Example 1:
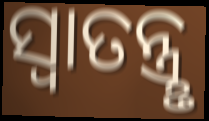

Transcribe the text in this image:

ସ୍ବାତନ୍ତ୍ରୢ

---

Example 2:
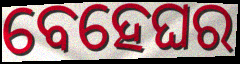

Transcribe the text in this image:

ବେହେଘର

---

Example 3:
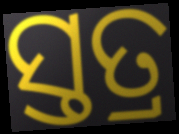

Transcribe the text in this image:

ସ୍ତତ୍ର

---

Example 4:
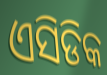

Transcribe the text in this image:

ଏସିଡିକ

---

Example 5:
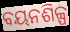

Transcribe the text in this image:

ବୟନଶିଳ୍ପ